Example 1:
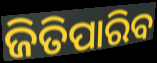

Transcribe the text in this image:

ଜିତିପାରିବ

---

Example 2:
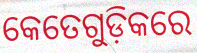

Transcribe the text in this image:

କେତେଗୁଡ଼ିକରେ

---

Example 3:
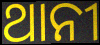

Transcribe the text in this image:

ଥାନୀ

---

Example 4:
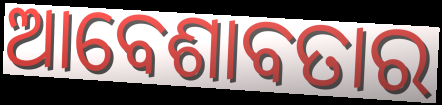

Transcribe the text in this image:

ଆବେଶାବତାର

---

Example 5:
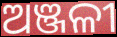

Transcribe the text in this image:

ଅଞ୍ଜଳୀ